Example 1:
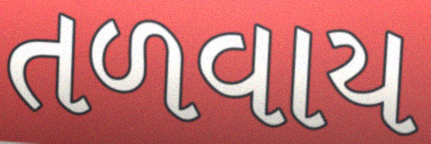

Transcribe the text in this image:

તળવાય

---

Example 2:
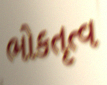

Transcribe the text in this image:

ભોકતૃત્વ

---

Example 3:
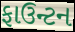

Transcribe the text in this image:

ફાઉન્ટન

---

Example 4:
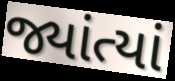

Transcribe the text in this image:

જ્યાંત્યાં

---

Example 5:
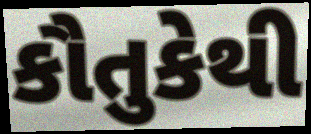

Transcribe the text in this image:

કૌતુકેથી